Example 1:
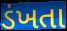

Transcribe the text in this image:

ડંખતા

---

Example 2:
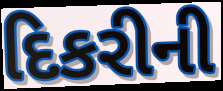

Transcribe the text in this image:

દિકરીની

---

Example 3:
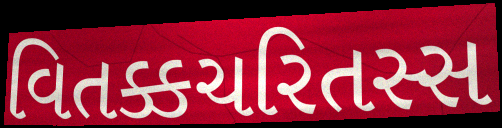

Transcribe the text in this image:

વિતક્કચરિતસ્સ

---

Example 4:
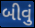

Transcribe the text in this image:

બીવું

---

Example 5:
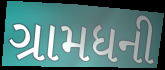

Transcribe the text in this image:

ગ્રામધની